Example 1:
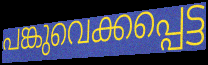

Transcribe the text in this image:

പങ്കുവെക്കപ്പെട്ട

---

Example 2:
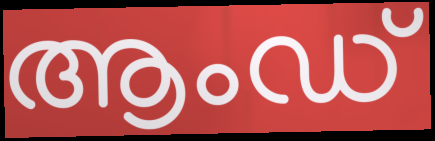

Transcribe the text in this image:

ആംഡ്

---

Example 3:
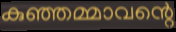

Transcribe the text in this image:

കുഞ്ഞമ്മാവന്റെ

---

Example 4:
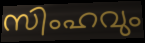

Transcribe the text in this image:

സിംഹവും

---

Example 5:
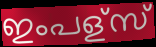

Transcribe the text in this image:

ഇംപള്സ്